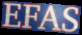
EFAS